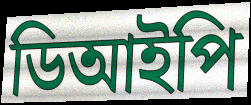
ডিআইপি